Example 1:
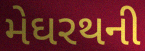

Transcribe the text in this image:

મેઘરથની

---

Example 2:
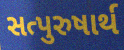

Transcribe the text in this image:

સત્પુરુષાર્થ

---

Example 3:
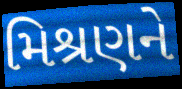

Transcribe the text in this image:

મિશ્રણને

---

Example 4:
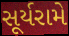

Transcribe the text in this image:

સૂર્યરામે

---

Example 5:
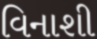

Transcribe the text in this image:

વિનાશી